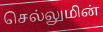
செல்லுமின்